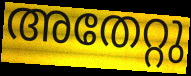
അതേറ്റു